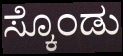
ಸ್ಕೊಂಡು